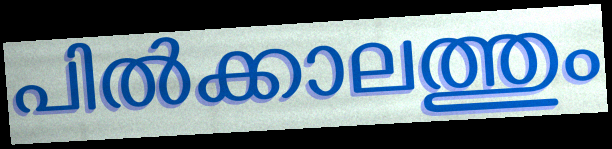
പിൽക്കാലത്തും